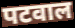
पटवाल